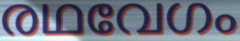
രഥവേഗം